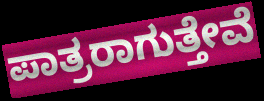
ಪಾತ್ರರಾಗುತ್ತೇವೆ